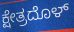
ಕ್ಷೇತ್ರದೊಳ್